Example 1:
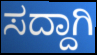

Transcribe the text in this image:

ಸದ್ದಾಗಿ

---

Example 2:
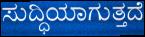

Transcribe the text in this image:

ಸುದ್ಧಿಯಾಗುತ್ತದೆ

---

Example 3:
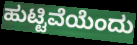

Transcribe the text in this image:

ಹುಟ್ಟಿವೆಯೆಂದು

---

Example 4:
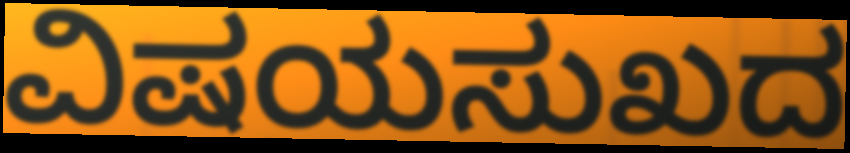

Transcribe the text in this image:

ವಿಷಯಸುಖದ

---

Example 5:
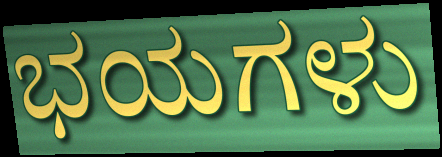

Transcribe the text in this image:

ಭಯಗಳು